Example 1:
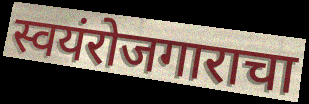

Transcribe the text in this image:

स्वयंरोजगाराचा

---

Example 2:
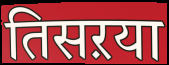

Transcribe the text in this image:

तिसऱया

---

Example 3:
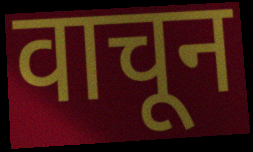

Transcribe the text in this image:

वाचून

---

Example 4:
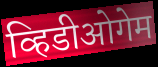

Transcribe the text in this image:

व्हिडीओगेम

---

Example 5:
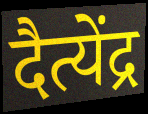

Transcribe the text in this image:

दैत्येंद्र